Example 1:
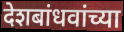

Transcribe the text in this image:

देशबांधवांच्या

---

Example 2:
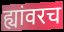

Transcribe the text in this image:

ह्यांवरच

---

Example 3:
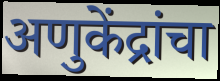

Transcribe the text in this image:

अणुकेंद्रांचा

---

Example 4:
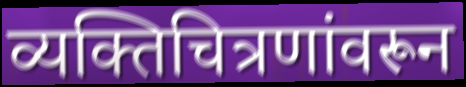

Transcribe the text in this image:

व्यक्तिचित्रणांवरून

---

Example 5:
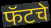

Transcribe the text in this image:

फॅटचे